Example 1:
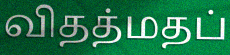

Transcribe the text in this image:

விதத்மதப்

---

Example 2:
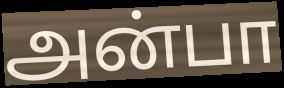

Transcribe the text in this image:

அன்பா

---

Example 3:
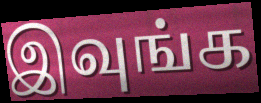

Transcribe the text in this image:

இவுங்க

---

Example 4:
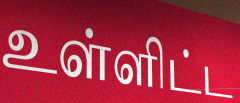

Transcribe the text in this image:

உள்ளிட்ட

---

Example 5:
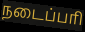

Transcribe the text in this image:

நடைப்பரி